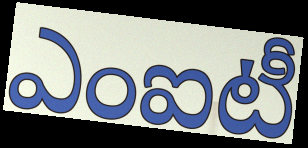
ఎంఐటీ